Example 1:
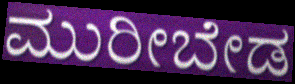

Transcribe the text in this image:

ಮುರೀಬೇಡ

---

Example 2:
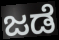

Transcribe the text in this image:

ಜಡೆ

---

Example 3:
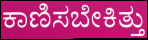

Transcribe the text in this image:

ಕಾಣಿಸಬೇಕಿತ್ತು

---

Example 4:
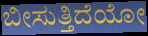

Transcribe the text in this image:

ಬೀಸುತ್ತಿದೆಯೋ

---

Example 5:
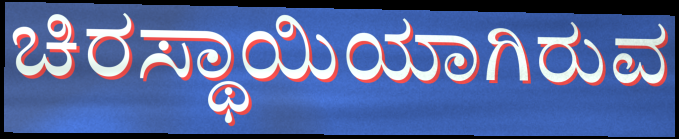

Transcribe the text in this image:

ಚಿರಸ್ಥಾಯಿಯಾಗಿರುವ